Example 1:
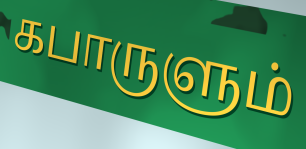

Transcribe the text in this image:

கபாருளும்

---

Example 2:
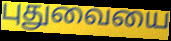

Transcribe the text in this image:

புதுவையை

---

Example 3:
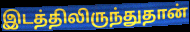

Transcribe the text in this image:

இடத்திலிருந்துதான்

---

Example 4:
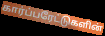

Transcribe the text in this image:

கார்ப்பரேட்டுகளின்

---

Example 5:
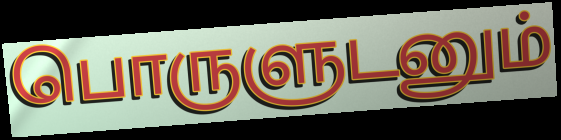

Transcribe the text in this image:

பொருளுடனும்